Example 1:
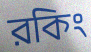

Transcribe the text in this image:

রকিং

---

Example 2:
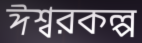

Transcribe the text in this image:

ঈশ্বরকল্প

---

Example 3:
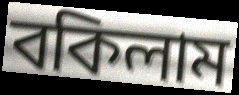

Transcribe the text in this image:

বকিলাম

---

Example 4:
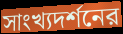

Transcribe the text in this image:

সাংখ্যদর্শনের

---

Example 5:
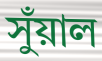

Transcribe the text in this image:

সুঁয়াল